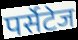
पर्सेटेज